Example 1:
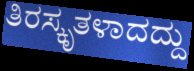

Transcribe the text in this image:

ತಿರಸ್ಕೃತಳಾದದ್ದು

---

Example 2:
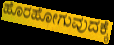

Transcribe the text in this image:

ಹೊರಹೋಗುವುದಕ್ಕೆ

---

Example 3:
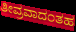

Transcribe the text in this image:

ತೀವ್ರವಾದಂತಹ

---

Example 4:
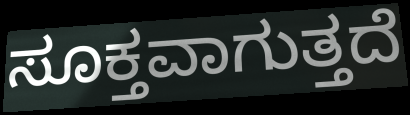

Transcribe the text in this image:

ಸೂಕ್ತವಾಗುತ್ತದೆ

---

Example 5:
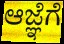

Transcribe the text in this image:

ಆಜ್ಞೆಗೆ